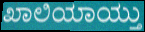
ಖಾಲಿಯಾಯ್ತು